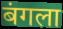
बंगला